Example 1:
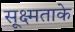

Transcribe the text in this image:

सूक्ष्मताके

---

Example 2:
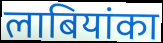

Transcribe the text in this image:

लाबियांका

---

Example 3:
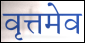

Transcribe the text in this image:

वृत्तमेव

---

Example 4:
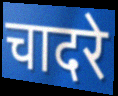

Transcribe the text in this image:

चादरे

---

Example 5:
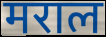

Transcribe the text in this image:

मराल